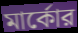
মার্কোর